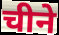
चीने